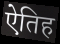
ऐतिह